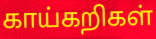
காய்கறிகள்